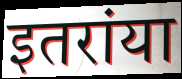
इतरांया